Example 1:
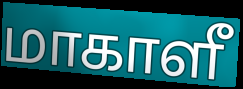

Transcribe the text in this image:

மாகாளீ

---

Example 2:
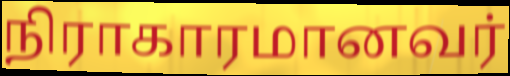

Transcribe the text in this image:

நிராகாரமானவர்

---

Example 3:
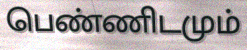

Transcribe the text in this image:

பெண்ணிடமும்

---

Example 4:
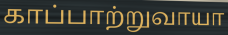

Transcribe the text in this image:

காப்பாற்றுவாயா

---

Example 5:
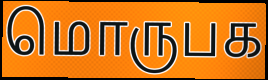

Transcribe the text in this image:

மொருபக